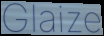
Glaize